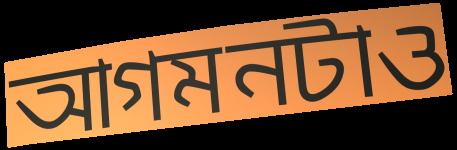
আগমনটাও